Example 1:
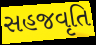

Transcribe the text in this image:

સહજવૃતિ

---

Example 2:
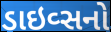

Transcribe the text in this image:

ડાઇવ્સનો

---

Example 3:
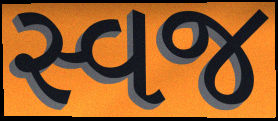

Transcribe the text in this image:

સ્વજ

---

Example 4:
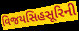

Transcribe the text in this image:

વિજયસિહસૂરિની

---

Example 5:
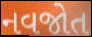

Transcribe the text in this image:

નવજોત